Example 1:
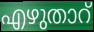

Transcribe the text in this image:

എഴുതാറ്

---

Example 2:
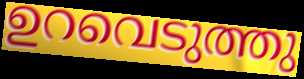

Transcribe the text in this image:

ഉറവെടുത്തു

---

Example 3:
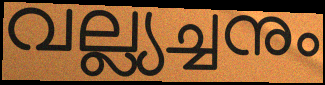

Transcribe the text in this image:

വല്ല്യച്ചനും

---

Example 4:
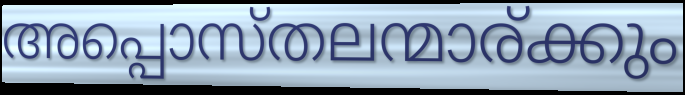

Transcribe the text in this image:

അപ്പൊസ്തലന്മാര്ക്കും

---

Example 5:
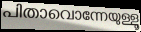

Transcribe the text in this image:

പിതാവൊന്നേയുള്ളൂ